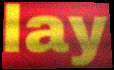
lay